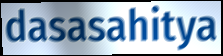
dasasahitya